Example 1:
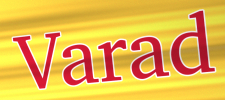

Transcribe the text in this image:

Varad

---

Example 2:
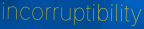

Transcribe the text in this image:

incorruptibility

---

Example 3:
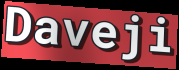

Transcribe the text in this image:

Daveji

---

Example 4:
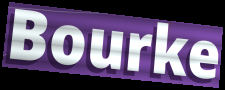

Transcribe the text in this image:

Bourke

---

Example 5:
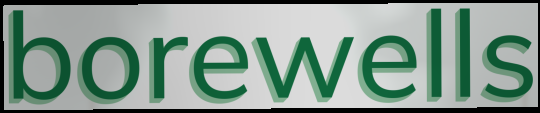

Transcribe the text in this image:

borewells